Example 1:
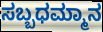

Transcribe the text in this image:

ಸಬ್ಬಧಮ್ಮಾನ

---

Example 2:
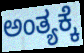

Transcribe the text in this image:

ಅಂತ್ಯಕ್ಕೆ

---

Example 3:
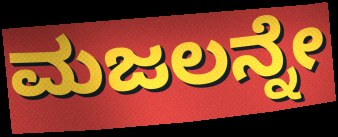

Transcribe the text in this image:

ಮಜಲನ್ನೇ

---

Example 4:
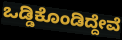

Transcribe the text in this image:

ಒಡ್ಡಿಕೊಂಡಿದ್ದೇವೆ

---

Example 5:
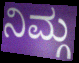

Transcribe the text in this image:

ನಿಮ್ಗ